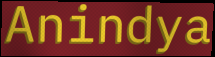
Anindya